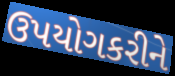
ઉપયોગકરીને